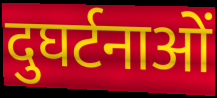
दुघर्टनाओं